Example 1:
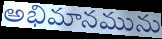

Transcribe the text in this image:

అభిమానమును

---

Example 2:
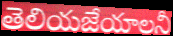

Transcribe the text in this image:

తెలియజేయాలనీ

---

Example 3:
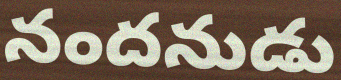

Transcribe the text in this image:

నందనుడు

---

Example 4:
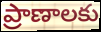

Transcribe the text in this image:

ప్రాణాలకు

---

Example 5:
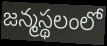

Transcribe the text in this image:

జన్మస్థలంలో